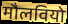
मौलवियो